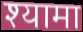
श्यामा